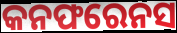
କନଫରେନସ